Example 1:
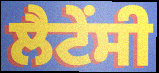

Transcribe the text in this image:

ਲੈਟੇਂਸੀ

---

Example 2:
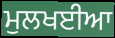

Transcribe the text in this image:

ਮੁਲਖਈਆ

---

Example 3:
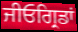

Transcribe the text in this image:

ਜੀਓਗ੍ਰਿਡਾਂ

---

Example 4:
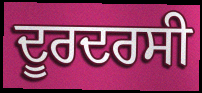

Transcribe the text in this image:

ਦੂਰਦਰਸੀ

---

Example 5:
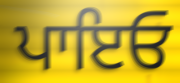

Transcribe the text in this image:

ਪਾਇਓ